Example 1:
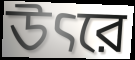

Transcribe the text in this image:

উৎরে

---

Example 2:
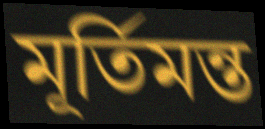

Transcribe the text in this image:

মূর্তিমন্ত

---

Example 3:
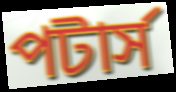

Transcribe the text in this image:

পটার্স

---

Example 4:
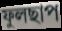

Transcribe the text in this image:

ফুলছাপ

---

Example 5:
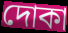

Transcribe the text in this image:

দোকা